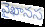
వైఖానస